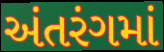
અંતરંગમાં